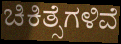
ಚಿಕಿತ್ಸೆಗಳಿವೆ